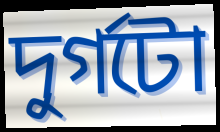
দুৰ্গটো